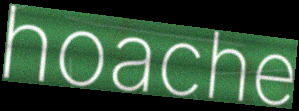
hoache